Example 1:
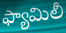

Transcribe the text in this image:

ఫ్యామిలీ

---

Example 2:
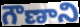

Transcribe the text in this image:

గౌణాని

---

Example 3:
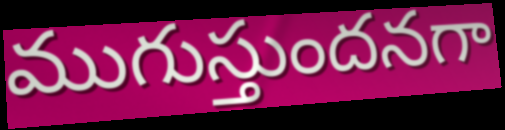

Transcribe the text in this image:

ముగుస్తుందనగా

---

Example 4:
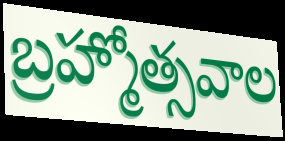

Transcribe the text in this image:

బ్రహ్మోత్సవాల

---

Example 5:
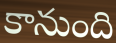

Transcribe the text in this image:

కానుంది